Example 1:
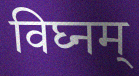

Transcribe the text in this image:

विघ्नम्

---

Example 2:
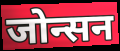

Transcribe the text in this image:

जोन्सन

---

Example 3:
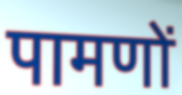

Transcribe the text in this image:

पामणों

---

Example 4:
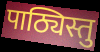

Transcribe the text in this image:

पाठ्यिस्तु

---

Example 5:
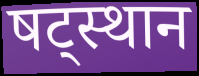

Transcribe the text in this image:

षट्स्थान